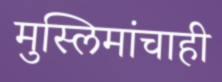
मुस्लिमांचाही